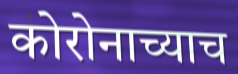
कोरोनाच्याच